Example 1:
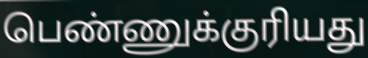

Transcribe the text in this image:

பெண்ணுக்குரியது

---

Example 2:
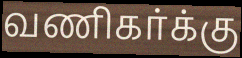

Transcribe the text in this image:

வணிகர்க்கு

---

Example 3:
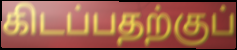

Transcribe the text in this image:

கிடப்பதற்குப்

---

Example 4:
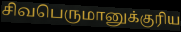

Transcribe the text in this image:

சிவபெருமானுக்குரிய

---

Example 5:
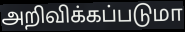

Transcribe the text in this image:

அறிவிக்கப்படுமா